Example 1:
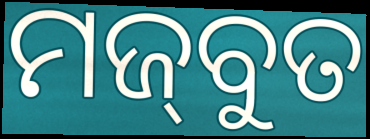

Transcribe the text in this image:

ମଜ୍‌ବୁତ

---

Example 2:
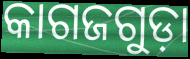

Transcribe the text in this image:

କାଗଜଗୁଡ଼ା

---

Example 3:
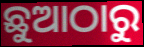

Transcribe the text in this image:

ଛୁଆଠାରୁ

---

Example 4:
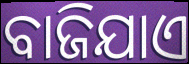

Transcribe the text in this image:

ବାଜିଯାଏ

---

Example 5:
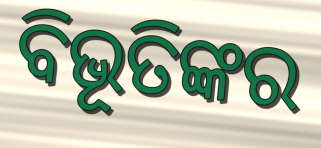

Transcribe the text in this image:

ବିଭୂତିଙ୍କର